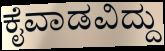
ಕೈವಾಡವಿದ್ದು